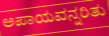
ಅಪಾಯವನ್ನರಿತು